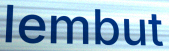
lembut